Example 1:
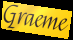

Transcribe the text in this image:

Graeme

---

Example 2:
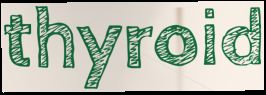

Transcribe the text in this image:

thyroid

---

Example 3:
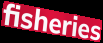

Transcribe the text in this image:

fisheries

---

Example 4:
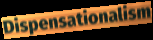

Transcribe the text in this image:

Dispensationalism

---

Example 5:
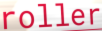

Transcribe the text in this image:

roller